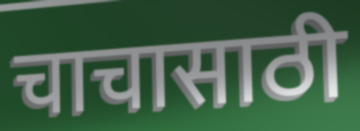
चाचासाठी